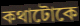
কথাটোকে